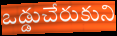
ఒడ్డుచేరుకుని